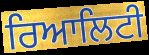
ਰਿਆਲਿਟੀ